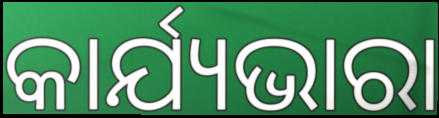
କାର୍ଯ୍ୟଭାରା